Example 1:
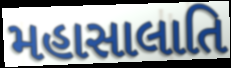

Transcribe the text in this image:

મહાસાલાતિ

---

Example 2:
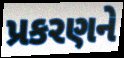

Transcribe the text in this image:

પ્રકરણને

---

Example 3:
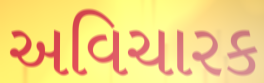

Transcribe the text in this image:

અવિચારક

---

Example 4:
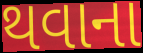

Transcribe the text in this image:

થવાના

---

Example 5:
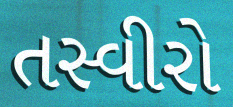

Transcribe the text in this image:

તસ્વીરો